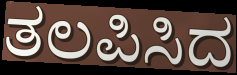
ತಲಪಿಸಿದ